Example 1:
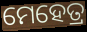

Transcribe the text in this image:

ମେହେତ୍ର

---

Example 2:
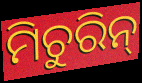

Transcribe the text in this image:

ମିଚୁରିନ୍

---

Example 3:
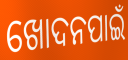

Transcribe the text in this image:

ଖୋଦନପାଇଁ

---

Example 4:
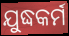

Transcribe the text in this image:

ଯୁଦ୍ଧକର୍ମ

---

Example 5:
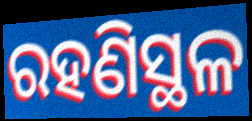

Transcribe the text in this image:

ରହଣିସ୍ଥଳ